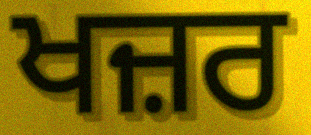
ਖਜ਼ਰ